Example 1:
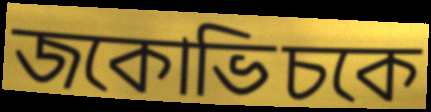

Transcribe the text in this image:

জকোভিচকে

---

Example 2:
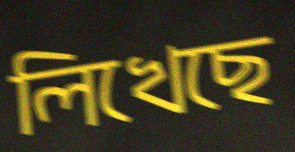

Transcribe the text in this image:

লিখেছে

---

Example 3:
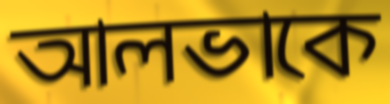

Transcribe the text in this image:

আলভাকে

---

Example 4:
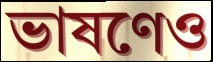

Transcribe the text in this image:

ভাষণেও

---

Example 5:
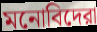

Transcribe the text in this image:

মনোবিদেরা